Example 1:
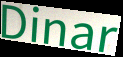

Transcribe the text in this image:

Dinar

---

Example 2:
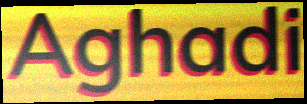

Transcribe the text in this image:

Aghadi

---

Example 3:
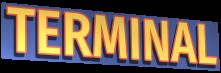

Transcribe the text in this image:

TERMINAL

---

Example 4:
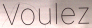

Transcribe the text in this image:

Voulez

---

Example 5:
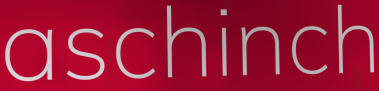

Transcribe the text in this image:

aschinch